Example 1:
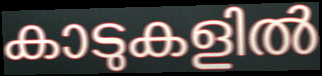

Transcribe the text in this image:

കാടുകളിൽ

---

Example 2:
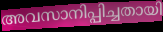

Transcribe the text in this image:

അവസാനിപ്പിച്ചതായി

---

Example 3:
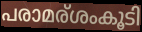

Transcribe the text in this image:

പരാമര്ശംകൂടി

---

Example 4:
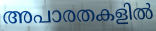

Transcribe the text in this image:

അപാരതകളിൽ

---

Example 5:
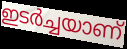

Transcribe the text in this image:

ഇടർച്ചയാണ്